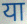
या